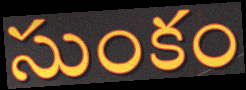
సుంకం